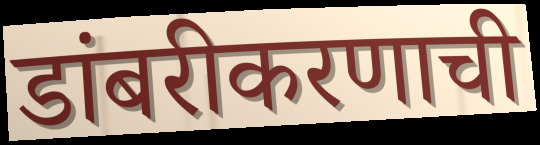
डांबरीकरणाची